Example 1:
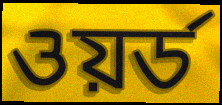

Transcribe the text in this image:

ওয়র্ড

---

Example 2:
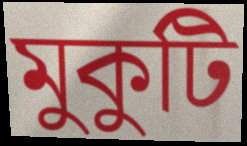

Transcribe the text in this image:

মুকুটি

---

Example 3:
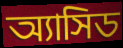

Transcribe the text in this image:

অ্যাসিড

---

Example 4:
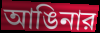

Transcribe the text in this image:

আঙিনার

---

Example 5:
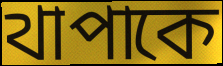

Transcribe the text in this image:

থাপাকে